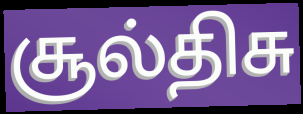
சூல்திசு